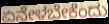
ಏನೇಳಬೇಕೆಂದು